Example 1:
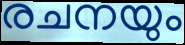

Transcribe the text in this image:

രചനയും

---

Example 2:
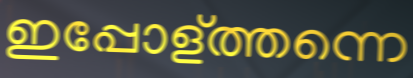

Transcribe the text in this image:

ഇപ്പോള്ത്തന്നെ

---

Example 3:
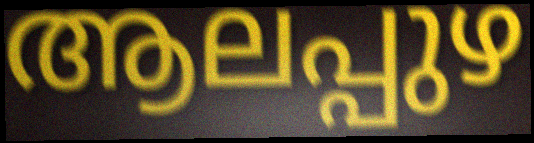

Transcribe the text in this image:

ആലപ്പുഴ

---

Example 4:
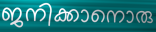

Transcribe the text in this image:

ജനിക്കാനൊരു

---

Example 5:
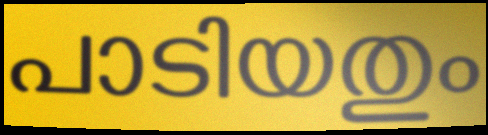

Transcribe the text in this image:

പാടിയതും